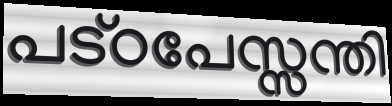
പട്ഠപേസ്സന്തി